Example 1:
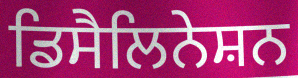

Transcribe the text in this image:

ਡਿਸੈਲਿਨੇਸ਼ਨ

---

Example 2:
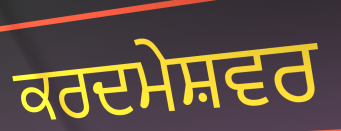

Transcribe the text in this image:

ਕਰਦਮੇਸ਼ਵਰ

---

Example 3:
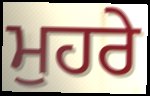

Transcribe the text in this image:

ਮੁਹਰੇ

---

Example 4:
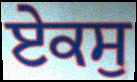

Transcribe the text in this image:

ਏਕਸੁ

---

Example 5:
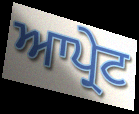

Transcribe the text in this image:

ਆਪ੍ਰੇਟ